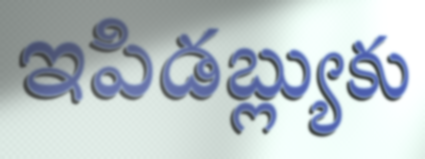
ఇపిడబ్ల్యుకు